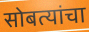
सोबत्यांचा